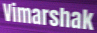
Vimarshak